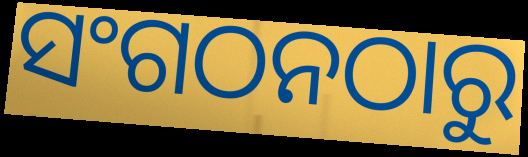
ସଂଗଠନଠାରୁ